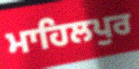
ਮਾਹਿਲਪੁਰ